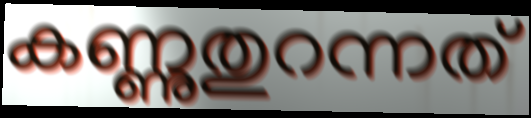
കണ്ണുതുറന്നത്